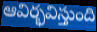
ఆవిర్భవిస్తుంది